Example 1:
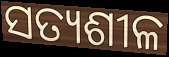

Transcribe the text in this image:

ସତ୍ୟଶୀଳ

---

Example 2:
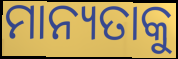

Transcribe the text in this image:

ମାନ୍ୟତାକୁ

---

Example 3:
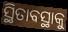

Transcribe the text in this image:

ସ୍ଥିତାବସ୍ଥାକୁ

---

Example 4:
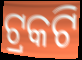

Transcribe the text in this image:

ଟ୍ରକଟି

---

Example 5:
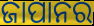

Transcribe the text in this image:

ଜାପାନର